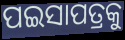
ପଇସାପତ୍ରକୁ